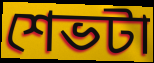
শেভটা